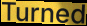
Turned